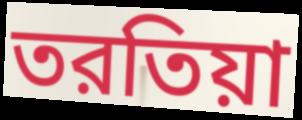
তরতিয়া